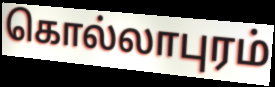
கொல்லாபுரம்